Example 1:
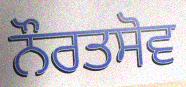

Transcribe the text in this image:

ਨੌਰਤਸੋਵ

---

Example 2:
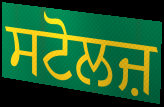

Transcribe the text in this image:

ਸਟੋਲਜ਼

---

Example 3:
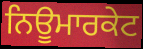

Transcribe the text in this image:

ਨਿਊਮਾਰਕੇਟ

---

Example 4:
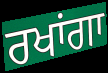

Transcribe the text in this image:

ਰਖਾਂਗਾ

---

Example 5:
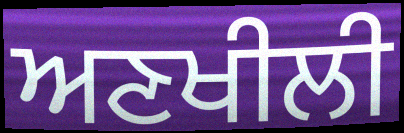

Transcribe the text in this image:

ਅਣਖੀਲੀ